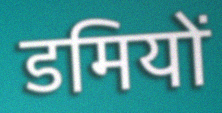
डमियों